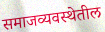
समाजव्यवस्थेतील